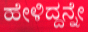
ಹೇಳಿದ್ದನ್ನೇ